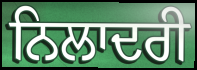
ਨਿਲਾਦਰੀ